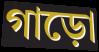
গাড়ো